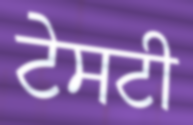
ਟੇਸਟੀ